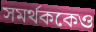
সমর্থককেও